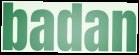
badan